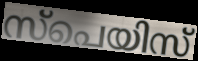
സ്പെയിസ്